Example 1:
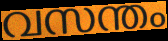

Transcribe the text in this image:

വസന്തം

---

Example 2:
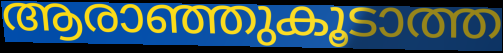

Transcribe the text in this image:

ആരാഞ്ഞുകൂടാത്ത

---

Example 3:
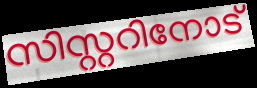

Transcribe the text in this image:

സിസ്റ്ററിനോട്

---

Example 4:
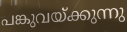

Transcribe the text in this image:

പങ്കുവയ്ക്കുന്നു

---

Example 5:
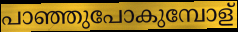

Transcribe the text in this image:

പാഞ്ഞുപോകുമ്പോള്